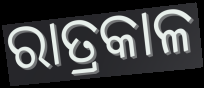
ରାତ୍ରକାଳ